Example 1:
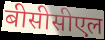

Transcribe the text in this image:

बीसीसीएल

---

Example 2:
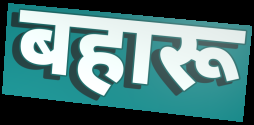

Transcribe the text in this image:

बहारू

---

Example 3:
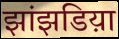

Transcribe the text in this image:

झांझडिय़ा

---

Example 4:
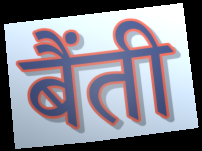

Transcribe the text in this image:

बैंती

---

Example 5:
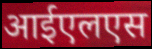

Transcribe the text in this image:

आईएलएस